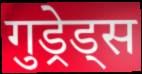
गुड्रेड्स